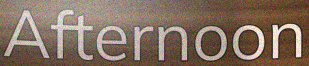
Afternoon